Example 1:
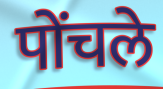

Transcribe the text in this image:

पोंचले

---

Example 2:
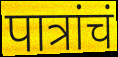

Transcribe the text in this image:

पात्रांचं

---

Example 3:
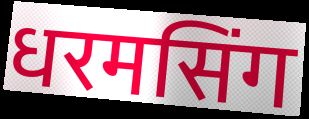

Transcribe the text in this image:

धरमसिंग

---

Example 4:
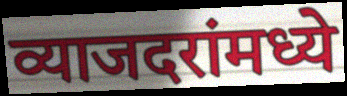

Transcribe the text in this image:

व्याजदरांमध्ये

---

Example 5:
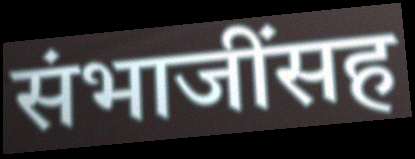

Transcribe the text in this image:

संभाजींसह